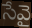
సేవై